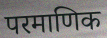
परमाणिक